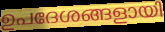
ഉപദേശങ്ങളായി